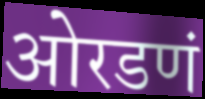
ओरडणं